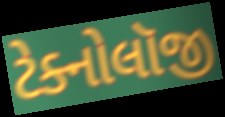
ટેક્નોલૉજી